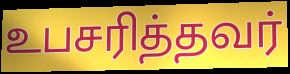
உபசரித்தவர்